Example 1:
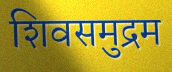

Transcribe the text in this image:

शिवसमुद्रम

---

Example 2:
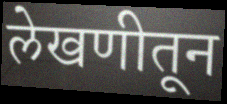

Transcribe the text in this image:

लेखणीतून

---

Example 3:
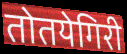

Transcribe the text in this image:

तोतयेगिरी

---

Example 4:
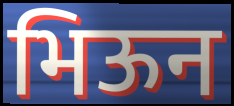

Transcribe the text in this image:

भिऊन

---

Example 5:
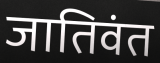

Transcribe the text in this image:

जातिवंत